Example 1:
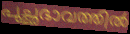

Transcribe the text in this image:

പുച്ഛഭാവത്തിൽ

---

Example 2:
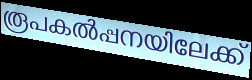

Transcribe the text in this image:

രൂപകൽപ്പനയിലേക്ക്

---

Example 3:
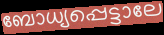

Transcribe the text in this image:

ബോധ്യപ്പെട്ടാലേ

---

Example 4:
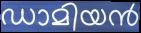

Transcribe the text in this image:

ഡാമിയൻ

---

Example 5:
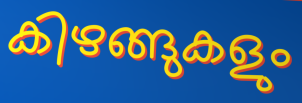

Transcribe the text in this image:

കിഴങ്ങുകളും